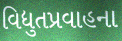
વિદ્યુતપ્રવાહના